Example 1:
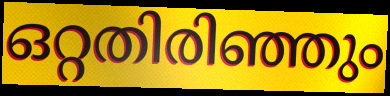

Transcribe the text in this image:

ഒറ്റതിരിഞ്ഞും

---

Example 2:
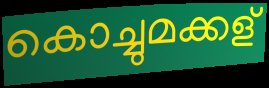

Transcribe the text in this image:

കൊച്ചുമക്കള്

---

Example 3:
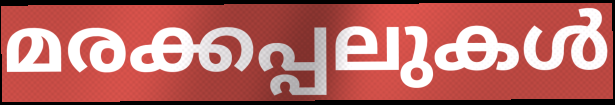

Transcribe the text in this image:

മരക്കപ്പലുകൾ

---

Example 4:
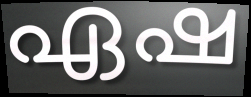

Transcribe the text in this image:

ഏഷ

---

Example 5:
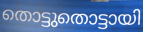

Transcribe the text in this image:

തൊട്ടുതൊട്ടായി